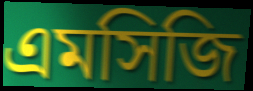
এমসিজি